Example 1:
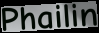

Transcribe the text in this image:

Phailin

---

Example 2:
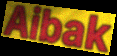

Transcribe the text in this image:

Aibak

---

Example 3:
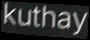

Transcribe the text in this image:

kuthay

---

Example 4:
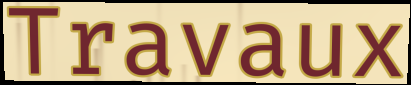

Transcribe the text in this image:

Travaux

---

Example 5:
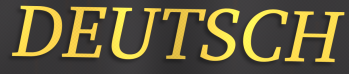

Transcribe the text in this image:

DEUTSCH